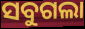
ସବୁଗଲା